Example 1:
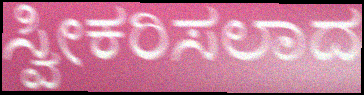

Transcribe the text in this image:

ಸ್ವೀಕರಿಸಲಾದ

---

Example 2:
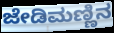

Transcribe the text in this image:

ಜೇಡಿಮಣ್ಣಿನ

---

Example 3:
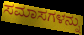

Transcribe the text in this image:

ಸಮಾಸಗಳನ್ನು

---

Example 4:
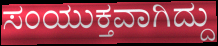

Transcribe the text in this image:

ಸಂಯುಕ್ತವಾಗಿದ್ದು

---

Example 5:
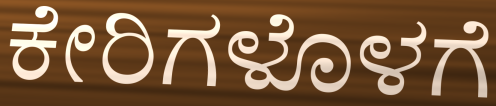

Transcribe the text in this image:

ಕೇರಿಗಳೊಳಗೆ